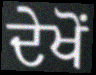
ਦੇਖੋਂ